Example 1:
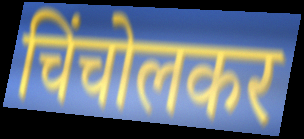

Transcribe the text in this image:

चिंचोलकर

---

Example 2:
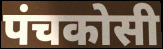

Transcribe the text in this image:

पंचकोसी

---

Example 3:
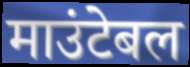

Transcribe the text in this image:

माउंटेबल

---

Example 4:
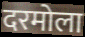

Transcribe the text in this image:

दरमोला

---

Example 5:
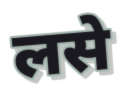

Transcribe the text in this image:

लसे